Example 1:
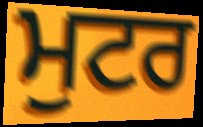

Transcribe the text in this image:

ਮੁਟਰ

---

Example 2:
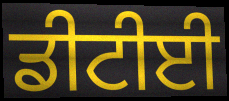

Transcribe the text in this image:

ਡੀਟੀਈ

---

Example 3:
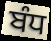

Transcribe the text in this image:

ਬੰਧ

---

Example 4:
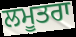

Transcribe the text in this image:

ਲਮੂਤਰਾ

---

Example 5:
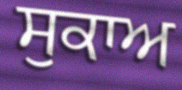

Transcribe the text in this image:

ਸੁਕਾਅ